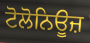
ਟੋਲੋਨਿਊਜ਼